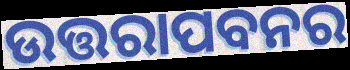
ଉତ୍ତରାପବନର